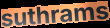
suthrams